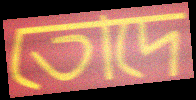
তোদে